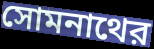
সোমনাথের